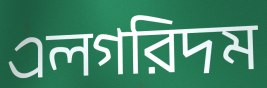
এলগরিদম